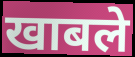
खाबले